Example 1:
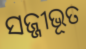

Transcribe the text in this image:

ସଜ୍ଜୀଭୂତ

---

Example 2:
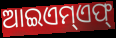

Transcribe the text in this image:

ଆଇଏମ୍ଏଫ୍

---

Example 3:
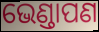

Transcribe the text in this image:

ଭେଣ୍ଡାପଣ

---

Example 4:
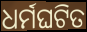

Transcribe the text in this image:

ଧର୍ମଘଟିତ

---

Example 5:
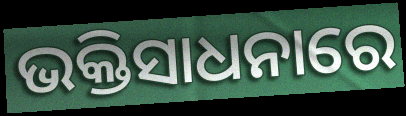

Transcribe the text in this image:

ଭକ୍ତିସାଧନାରେ